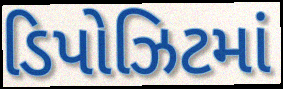
ડિપોઝિટમાં